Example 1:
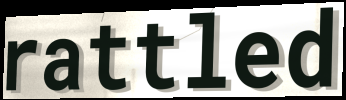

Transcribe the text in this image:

rattled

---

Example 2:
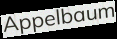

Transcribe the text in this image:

Appelbaum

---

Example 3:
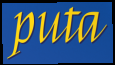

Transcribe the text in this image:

puta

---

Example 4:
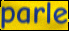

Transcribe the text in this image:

parle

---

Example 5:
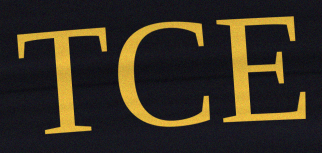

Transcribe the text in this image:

TCE